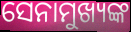
ସେନାମୁଖ୍ୟଙ୍କ